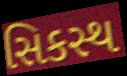
સિકસ્થ